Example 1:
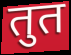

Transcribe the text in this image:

तुत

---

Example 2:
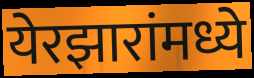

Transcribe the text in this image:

येरझारांमध्ये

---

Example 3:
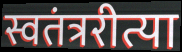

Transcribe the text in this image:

स्वतंत्ररीत्या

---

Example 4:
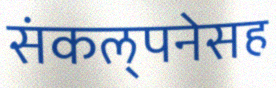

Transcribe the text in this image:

संकल्पनेसह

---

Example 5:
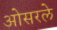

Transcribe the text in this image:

ओसरले